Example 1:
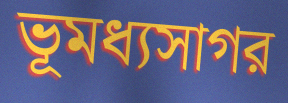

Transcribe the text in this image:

ভূমধ্যসাগর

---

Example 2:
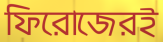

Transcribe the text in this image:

ফিরোজেরই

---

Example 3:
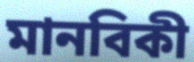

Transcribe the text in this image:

মানবিকী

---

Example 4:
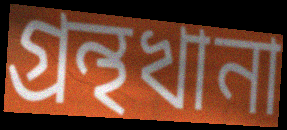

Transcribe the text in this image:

গ্রন্থখানা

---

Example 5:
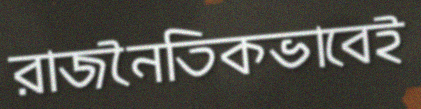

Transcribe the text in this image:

রাজনৈতিকভাবেই